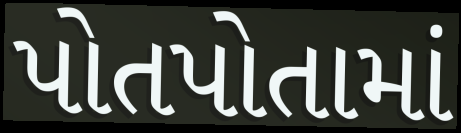
પોતપોતામાં